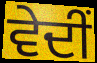
ਵੇਦੀਂ